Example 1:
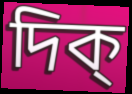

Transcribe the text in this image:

দিক্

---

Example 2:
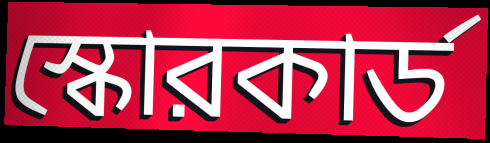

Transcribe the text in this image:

স্কোরকার্ড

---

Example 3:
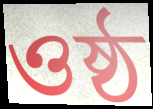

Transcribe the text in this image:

ওষ্ঠ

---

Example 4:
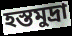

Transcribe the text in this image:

হস্তমুদ্রা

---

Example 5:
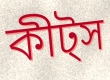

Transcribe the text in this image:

কীট্স